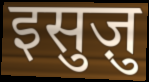
इसुज़ु